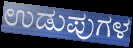
ಉಡುಪುಗಳ